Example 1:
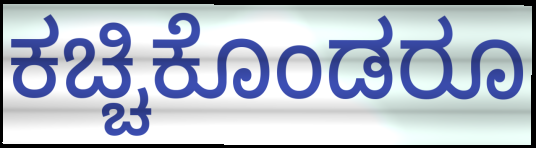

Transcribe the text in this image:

ಕಚ್ಚಿಕೊಂಡರೂ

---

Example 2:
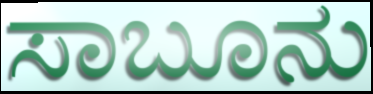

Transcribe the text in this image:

ಸಾಬೂನು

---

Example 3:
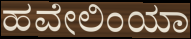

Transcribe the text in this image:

ಹವೇಲಿಂಯಾ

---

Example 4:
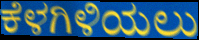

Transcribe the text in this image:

ಕೆಳಗಿಳಿಯಲು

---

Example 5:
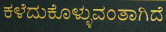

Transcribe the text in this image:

ಕಳೆದುಕೊಳ್ಳುವಂತಾಗಿದೆ